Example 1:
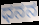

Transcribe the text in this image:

ಧನನ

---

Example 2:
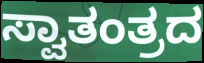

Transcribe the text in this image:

ಸ್ವಾತಂತ್ರದ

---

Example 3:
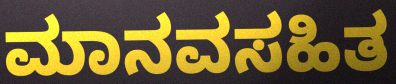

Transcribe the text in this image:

ಮಾನವಸಹಿತ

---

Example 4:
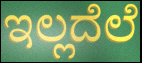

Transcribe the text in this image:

ಇಲ್ಲದೆಲೆ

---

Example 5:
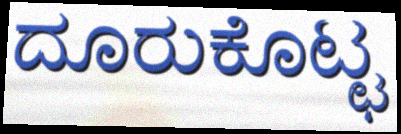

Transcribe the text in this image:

ದೂರುಕೊಟ್ಟ